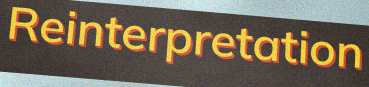
Reinterpretation